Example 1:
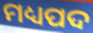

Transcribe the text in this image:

ମଧ୍ୟପଦ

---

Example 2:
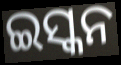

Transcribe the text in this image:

ଇସ୍କନ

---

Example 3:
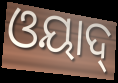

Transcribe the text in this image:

ଓୟାଦ୍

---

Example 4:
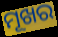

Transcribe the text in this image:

ମୂଖର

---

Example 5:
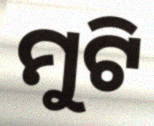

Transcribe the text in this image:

ମୁଟି